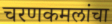
चरणकमलांचा